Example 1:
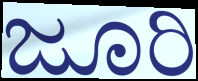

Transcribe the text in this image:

ಜೂರಿ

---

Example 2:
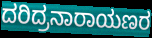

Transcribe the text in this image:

ದರಿದ್ರನಾರಾಯಣರ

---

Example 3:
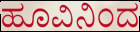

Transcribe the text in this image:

ಹೂವಿನಿಂದ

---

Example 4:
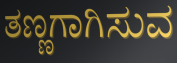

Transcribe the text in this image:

ತಣ್ಣಗಾಗಿಸುವ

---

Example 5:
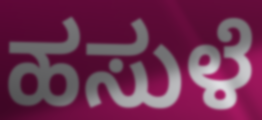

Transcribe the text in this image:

ಹಸುಳೆ